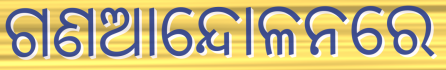
ଗଣଆନ୍ଦୋଳନରେ